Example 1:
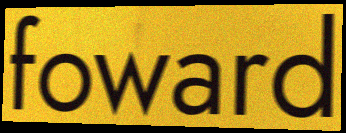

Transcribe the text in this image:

foward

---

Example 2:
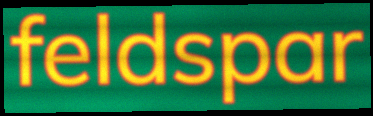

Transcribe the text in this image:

feldspar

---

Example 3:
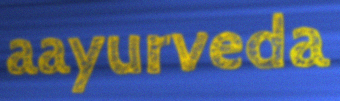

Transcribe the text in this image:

aayurveda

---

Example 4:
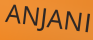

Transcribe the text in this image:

ANJANI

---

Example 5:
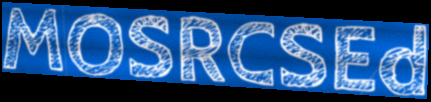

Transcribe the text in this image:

MOSRCSEd